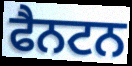
ਫੈਨਟਨ